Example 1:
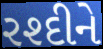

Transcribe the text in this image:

રશ્દીને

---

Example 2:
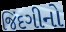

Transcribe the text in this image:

જિંદગીનો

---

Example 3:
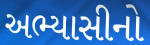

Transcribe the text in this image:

અભ્યાસીનો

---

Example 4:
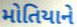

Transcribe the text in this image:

મોતિયાને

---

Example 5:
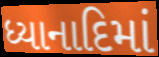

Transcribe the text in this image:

ધ્યાનાદિમાં